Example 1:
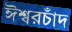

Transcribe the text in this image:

ঈশ্বরচাঁদ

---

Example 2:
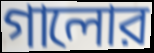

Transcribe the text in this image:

গালোর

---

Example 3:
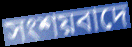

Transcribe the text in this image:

সংশয়বাদে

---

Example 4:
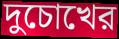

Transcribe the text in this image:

দুচোখের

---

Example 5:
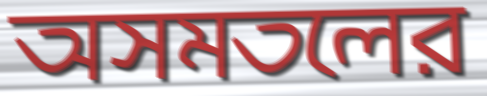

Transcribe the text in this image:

অসমতলের